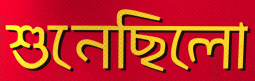
শুনেছিলো